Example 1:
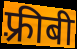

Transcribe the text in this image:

फ़्रीबी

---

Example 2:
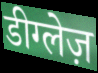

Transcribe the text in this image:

डीग्लेज़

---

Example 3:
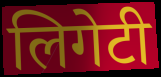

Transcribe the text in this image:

लिगेटी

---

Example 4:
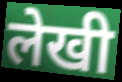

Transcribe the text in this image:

लेखी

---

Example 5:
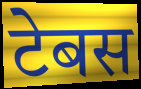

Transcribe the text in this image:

टेबस